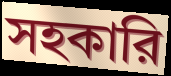
সহকারি